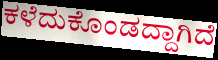
ಕಳೆದುಕೊಂಡದ್ದಾಗಿದೆ